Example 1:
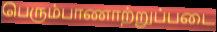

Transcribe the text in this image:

பெரும்பாணாற்றுப்படை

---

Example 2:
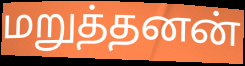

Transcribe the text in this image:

மறுத்தனன்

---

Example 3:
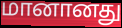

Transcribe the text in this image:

மானானது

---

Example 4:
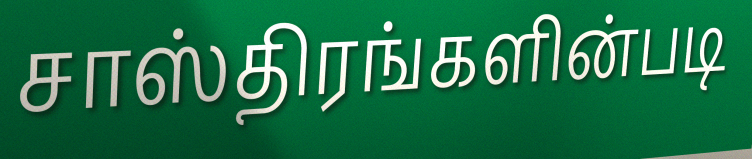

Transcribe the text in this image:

சாஸ்திரங்களின்படி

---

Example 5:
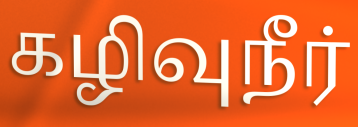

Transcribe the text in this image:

கழிவுநீர்